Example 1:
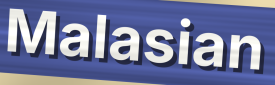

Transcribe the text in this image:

Malasian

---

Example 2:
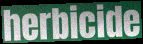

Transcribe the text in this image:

herbicide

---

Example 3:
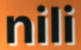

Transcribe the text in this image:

nili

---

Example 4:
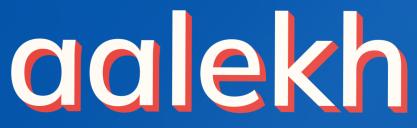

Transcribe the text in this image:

aalekh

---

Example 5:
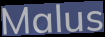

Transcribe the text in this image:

Malus